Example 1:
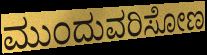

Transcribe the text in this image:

ಮುಂದುವರಿಸೋಣ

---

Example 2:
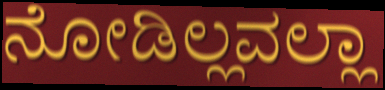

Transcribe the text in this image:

ನೋಡಿಲ್ಲವಲ್ಲಾ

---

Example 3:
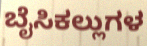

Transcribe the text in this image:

ಬೈಸಿಕಲ್ಲುಗಳ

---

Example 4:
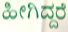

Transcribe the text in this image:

ಹೀಗಿದ್ದರೆ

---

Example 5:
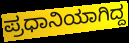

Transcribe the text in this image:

ಪ್ರಧಾನಿಯಾಗಿದ್ದ